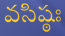
వసిష్ఠః